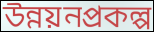
উন্নয়নপ্রকল্প